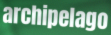
archipelago